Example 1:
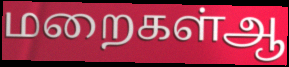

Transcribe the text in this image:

மறைகள்ஆ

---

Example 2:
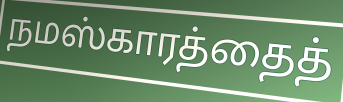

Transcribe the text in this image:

நமஸ்காரத்தைத்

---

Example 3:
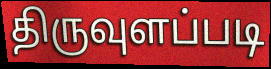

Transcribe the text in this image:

திருவுளப்படி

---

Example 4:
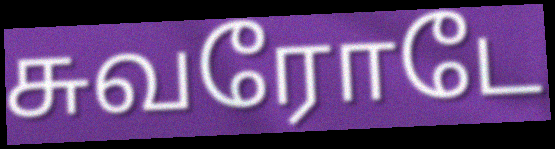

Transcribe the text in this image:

சுவரோடே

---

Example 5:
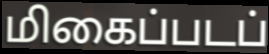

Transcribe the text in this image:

மிகைப்படப்